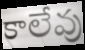
కాలేవు